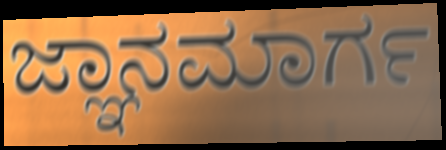
ಜ್ಞಾನಮಾರ್ಗ